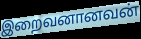
இறைவனானவன்